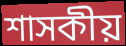
শাসকীয়